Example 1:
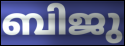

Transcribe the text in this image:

ബിജു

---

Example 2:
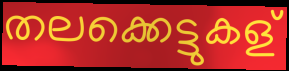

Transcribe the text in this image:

തലക്കെട്ടുകള്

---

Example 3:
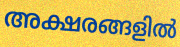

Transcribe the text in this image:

അക്ഷരങ്ങളിൽ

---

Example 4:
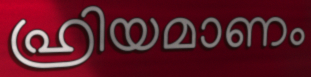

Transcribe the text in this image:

ഹ്രിയമാണം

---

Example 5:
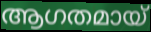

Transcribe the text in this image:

ആഗതമായ്